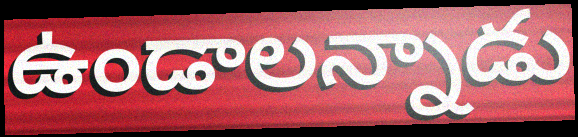
ఉండాలన్నాడు